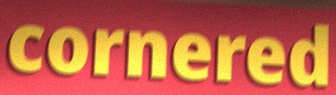
cornered